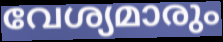
വേശ്യമാരും